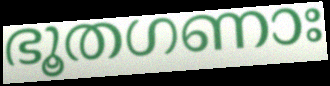
ഭൂതഗണാഃ